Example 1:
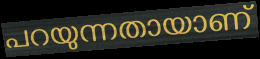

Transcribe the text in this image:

പറയുന്നതായാണ്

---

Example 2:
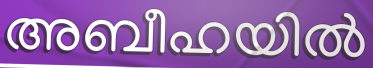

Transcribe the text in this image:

അബീഹയിൽ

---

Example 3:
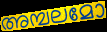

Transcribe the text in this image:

അമ്പലമോ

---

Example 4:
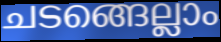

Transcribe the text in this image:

ചടങ്ങെല്ലാം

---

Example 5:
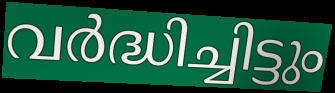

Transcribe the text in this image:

വർദ്ധിച്ചിട്ടും